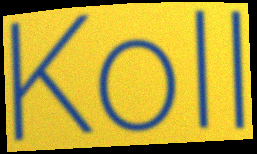
Koll